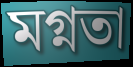
মগ্নতা